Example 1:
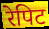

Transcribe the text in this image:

रेपिट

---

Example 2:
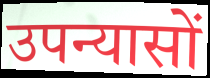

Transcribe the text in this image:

उपन्यासों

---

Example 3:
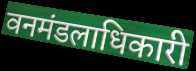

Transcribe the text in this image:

वनमंडलाधिकारी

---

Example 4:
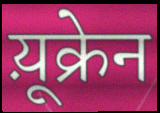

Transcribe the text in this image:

य़ूक्रेन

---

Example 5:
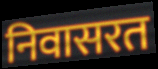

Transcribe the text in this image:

निवासरत